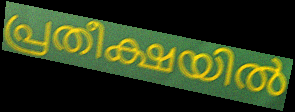
പ്രതീക്ഷയിൽ